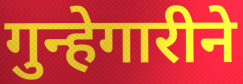
गुन्हेगारीने